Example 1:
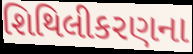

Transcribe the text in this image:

શિથિલીકરણના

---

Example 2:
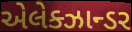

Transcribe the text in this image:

એલેક્ઝાન્ડર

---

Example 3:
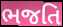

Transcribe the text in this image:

ભજતિ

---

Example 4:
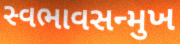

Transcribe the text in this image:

સ્વભાવસન્મુખ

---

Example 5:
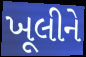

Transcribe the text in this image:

ખૂલીને